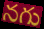
నగు